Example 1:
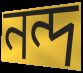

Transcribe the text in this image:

নন্দ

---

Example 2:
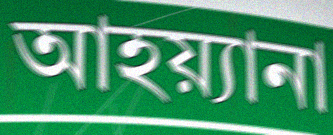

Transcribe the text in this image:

আহয়্যানা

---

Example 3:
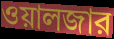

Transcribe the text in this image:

ওয়ালজার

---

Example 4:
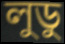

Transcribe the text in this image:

লুডু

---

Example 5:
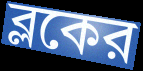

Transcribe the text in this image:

ব্লকের